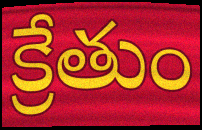
క్రేతుం